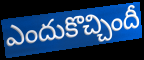
ఎందుకొచ్చిందీ